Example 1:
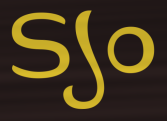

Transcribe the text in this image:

ട്യം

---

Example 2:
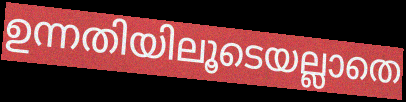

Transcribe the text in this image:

ഉന്നതിയിലൂടെയല്ലാതെ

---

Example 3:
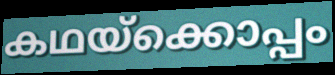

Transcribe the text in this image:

കഥയ്ക്കൊപ്പം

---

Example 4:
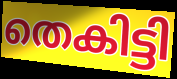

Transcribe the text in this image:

തെകിട്ടി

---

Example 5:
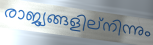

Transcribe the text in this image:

രാജ്യങ്ങളില്നിന്നും